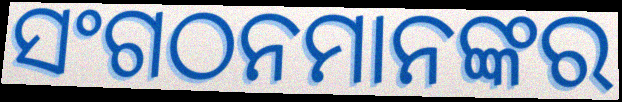
ସଂଗଠନମାନଙ୍କର